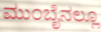
ಮುಂಬೈನಲ್ಲೂ